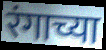
रंगाच्या